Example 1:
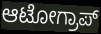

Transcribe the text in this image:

ಆಟೋಗ್ರಾಪ್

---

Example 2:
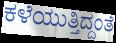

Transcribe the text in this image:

ಕಳೆಯುತ್ತಿದ್ದಂತೆ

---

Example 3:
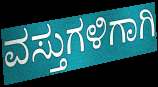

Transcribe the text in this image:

ವಸ್ತುಗಳಿಗಾಗಿ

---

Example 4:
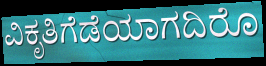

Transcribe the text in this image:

ವಿಕೃತಿಗೆಡೆಯಾಗದಿರೊ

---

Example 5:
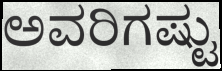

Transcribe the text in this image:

ಅವರಿಗಷ್ಟು